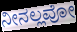
ನೀನಲ್ಲವೋ